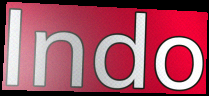
Indo